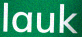
lauk